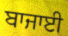
ਬਾਜਾਈ